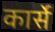
कार्से